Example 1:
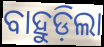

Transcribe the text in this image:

ବାହୁଡ଼ିଲା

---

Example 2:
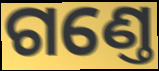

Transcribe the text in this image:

ଗଣ୍ତେ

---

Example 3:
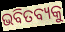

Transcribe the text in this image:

ଭବିତବ୍ୟକୁ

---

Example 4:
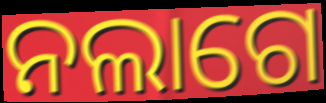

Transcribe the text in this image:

ନଲାଗେ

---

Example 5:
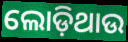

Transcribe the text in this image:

ଲୋଡ଼ିଥାଉ